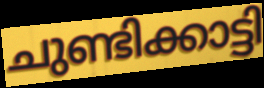
ചുണ്ടിക്കാട്ടി